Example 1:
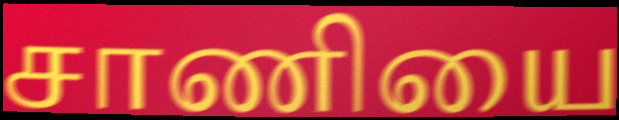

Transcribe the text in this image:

சாணியை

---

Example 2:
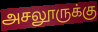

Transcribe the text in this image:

அசலூருக்கு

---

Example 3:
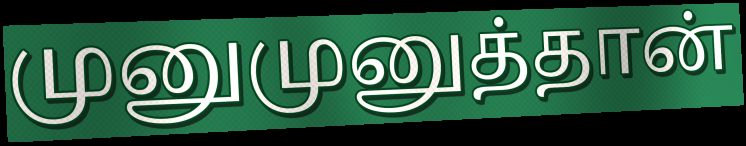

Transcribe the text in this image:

முனுமுனுத்தான்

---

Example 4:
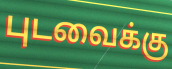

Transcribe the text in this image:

புடவைக்கு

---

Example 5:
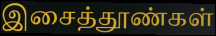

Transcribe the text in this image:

இசைத்தூண்கள்